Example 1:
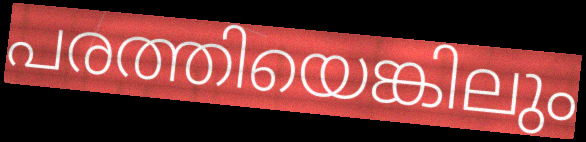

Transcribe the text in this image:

പരത്തിയെങ്കിലും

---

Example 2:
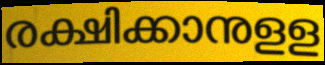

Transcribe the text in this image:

രക്ഷിക്കാനുളള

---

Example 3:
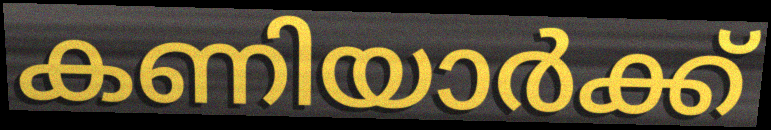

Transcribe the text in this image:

കണിയാർക്ക്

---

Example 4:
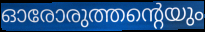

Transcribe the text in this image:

ഓരോരുത്തന്റെയും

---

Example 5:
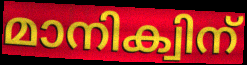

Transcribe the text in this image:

മാനിക്വിന്